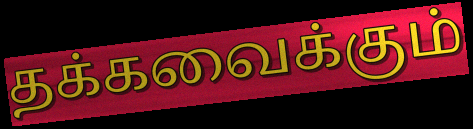
தக்கவைக்கும்